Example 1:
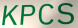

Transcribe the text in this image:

KPCS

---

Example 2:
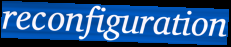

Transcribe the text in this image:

reconfiguration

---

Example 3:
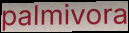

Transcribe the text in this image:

palmivora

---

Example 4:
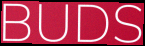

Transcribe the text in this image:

BUDS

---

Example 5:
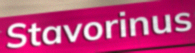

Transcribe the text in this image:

Stavorinus